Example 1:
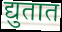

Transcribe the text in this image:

द्युतात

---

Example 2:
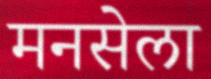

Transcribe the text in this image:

मनसेला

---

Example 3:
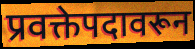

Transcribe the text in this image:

प्रवक्तेपदावरून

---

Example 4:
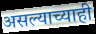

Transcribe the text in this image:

असल्याच्याही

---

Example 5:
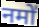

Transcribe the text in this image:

नमो॑